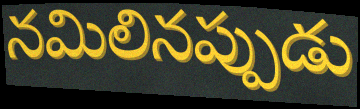
నమిలినప్పుడు